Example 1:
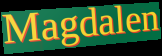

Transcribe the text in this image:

Magdalen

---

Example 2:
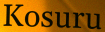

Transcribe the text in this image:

Kosuru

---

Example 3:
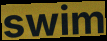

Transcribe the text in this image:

swim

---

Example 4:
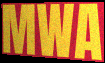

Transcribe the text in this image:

MWA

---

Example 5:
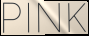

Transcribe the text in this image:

PINK